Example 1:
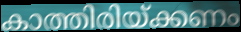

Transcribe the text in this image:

കാത്തിരിയ്ക്കണം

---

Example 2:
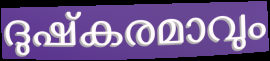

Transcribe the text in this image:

ദുഷ്‌കരമാവും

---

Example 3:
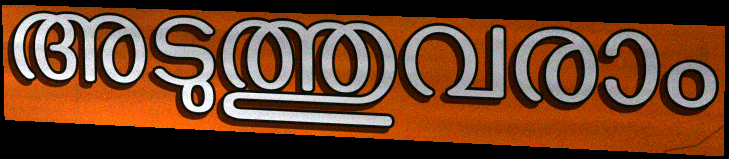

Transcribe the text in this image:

അടുത്തുവരാം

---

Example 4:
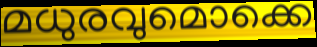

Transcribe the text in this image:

മധുരവുമൊക്കെ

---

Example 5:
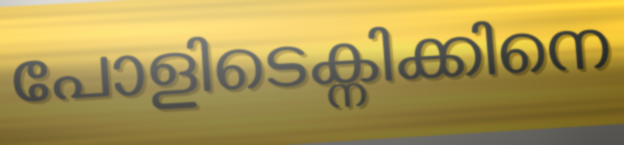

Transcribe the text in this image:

പോളിടെക്നിക്കിനെ